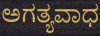
ಅಗತ್ಯವಾಧ